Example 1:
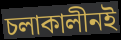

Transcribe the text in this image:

চলাকালীনই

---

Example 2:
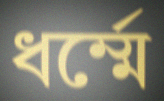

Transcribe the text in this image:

ধর্ম্মে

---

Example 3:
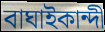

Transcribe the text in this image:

বাঘাইকান্দী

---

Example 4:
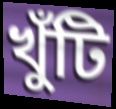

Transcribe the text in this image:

খুঁটি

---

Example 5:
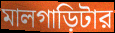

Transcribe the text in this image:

মালগাড়িটার